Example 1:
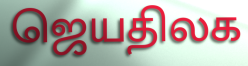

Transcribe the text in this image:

ஜெயதிலக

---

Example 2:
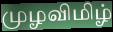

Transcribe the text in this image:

முழவிமிழ்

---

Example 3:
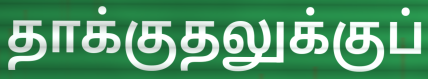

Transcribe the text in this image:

தாக்குதலுக்குப்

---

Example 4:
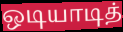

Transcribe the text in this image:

ஒடியாடித்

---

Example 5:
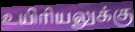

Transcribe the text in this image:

உயிரியலுக்கு